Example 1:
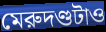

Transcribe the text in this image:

মেরুদণ্ডটাও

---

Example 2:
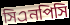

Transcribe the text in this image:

সিএনপিসি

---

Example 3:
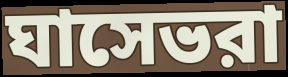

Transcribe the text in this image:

ঘাসেভরা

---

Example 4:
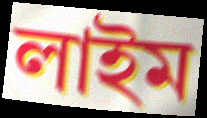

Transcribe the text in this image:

লাইম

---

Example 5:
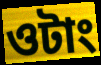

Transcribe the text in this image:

ওটাং